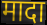
मादा